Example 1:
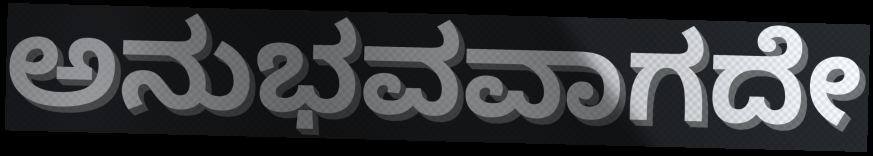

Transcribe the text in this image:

ಅನುಭವವಾಗದೇ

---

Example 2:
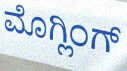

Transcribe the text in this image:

ಮೊಗ್ಲಿಂಗ್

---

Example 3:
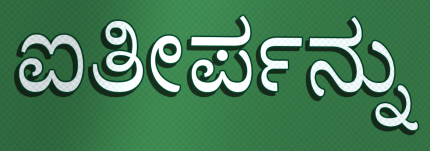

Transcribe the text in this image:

ಐತೀರ್ಪನ್ನು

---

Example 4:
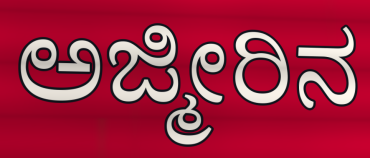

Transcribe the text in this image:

ಅಜ್ಮೀರಿನ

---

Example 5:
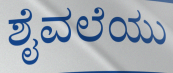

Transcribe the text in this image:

ಶೈವಲೆಯು